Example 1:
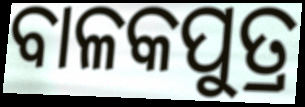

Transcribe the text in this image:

ବାଳକପୁତ୍ର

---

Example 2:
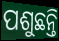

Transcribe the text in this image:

ପଶୁଛନ୍ତି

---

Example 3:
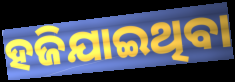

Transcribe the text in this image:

ହଜିଯାଇଥିବା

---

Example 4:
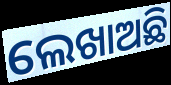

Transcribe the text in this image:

ଲେଖାଅଛି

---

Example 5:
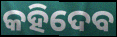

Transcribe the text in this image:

କହିଦେବ